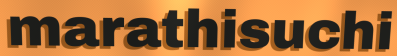
marathisuchi